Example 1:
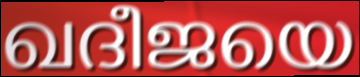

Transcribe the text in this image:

ഖദീജയെ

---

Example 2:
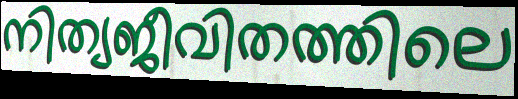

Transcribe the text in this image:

നിത്യജീവിതത്തിലെ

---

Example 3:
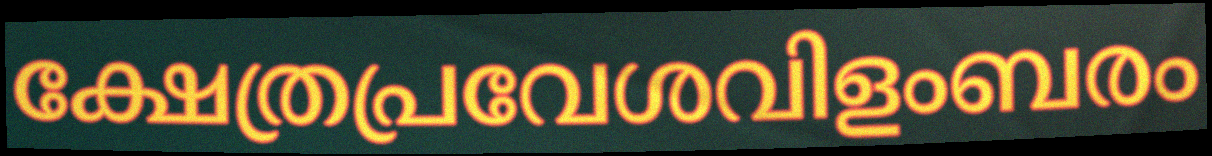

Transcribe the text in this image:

ക്ഷേത്രപ്രവേശവിളംബരം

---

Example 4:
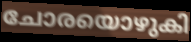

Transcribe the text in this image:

ചോരയൊഴുകി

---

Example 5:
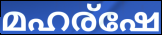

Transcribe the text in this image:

മഹര്ഷേ